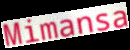
Mimansa